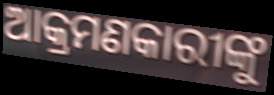
ଆକ୍ରମଣକାରୀଙ୍କୁ